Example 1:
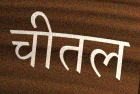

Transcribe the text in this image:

चीतल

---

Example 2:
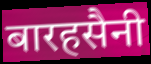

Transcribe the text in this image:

बारहसैनी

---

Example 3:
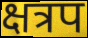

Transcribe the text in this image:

क्षत्रप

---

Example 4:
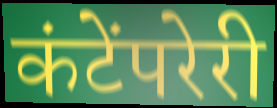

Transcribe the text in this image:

कंटेंपरेरी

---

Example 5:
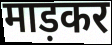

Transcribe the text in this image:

माड़कर